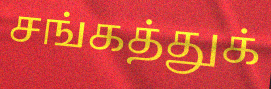
சங்கத்துக்